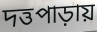
দত্তপাড়ায়